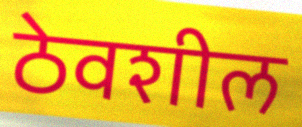
ठेवशील